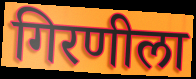
गिरणीला